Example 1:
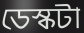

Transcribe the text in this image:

ডেস্কটা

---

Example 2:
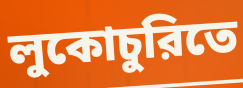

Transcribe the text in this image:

লুকোচুরিতে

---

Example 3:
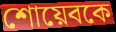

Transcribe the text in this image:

শোয়েবকে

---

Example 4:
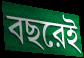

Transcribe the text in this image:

বছরেই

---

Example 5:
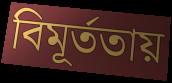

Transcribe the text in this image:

বিমূর্ততায়